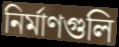
নির্মাণগুলি